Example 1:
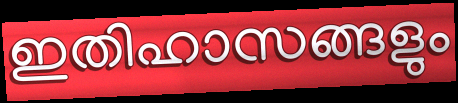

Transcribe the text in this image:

ഇതിഹാസങ്ങളും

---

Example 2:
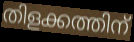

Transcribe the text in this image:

തിളക്കത്തിന്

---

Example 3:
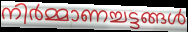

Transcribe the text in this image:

നിർമ്മാണച്ചട്ടങ്ങൾ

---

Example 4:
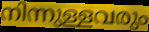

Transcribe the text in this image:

നിന്നുള്ളവരും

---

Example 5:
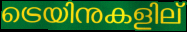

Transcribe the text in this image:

ട്രെയിനുകളില്